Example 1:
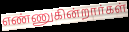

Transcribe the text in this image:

எண்ணுகின்றார்கள்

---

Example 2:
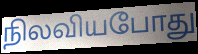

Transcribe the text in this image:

நிலவியபோது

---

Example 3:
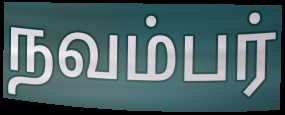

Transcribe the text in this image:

நவம்பர்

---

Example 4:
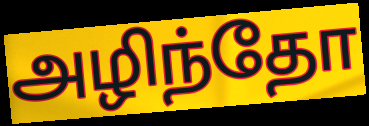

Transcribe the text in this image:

அழிந்தோ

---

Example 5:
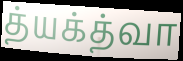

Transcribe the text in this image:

த்யக்த்வா